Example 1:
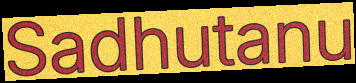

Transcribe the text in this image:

Sadhutanu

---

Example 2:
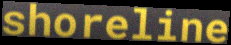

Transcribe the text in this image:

shoreline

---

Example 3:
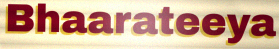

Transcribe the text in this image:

Bhaarateeya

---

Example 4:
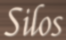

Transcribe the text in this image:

Silos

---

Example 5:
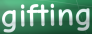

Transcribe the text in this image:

gifting